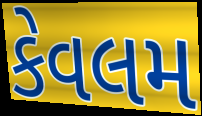
કેવલમ